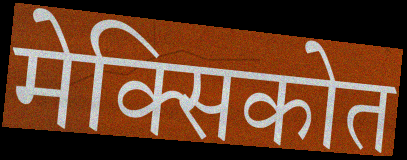
मेक्सिकोत